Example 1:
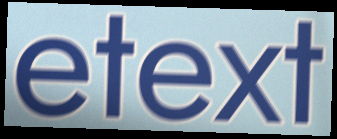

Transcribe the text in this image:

etext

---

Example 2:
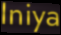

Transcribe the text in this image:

Iniya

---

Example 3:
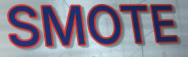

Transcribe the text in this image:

SMOTE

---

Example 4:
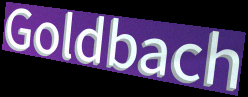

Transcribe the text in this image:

Goldbach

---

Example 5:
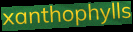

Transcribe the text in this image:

xanthophylls